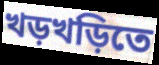
খড়খড়িতে